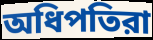
অধিপতিরা